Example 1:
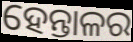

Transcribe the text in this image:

ହେନ୍ତାଳର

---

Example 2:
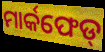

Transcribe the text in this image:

ମାର୍କଫେଡ୍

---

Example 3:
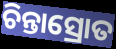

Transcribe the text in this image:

ଚିନ୍ତାସ୍ରୋତ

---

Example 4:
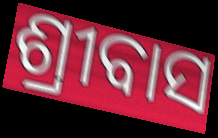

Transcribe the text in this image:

ଶ୍ରୀବାସ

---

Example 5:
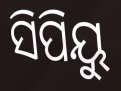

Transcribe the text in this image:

ସିପିୟୁ